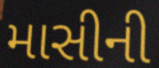
માસીની